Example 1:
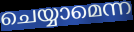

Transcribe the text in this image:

ചെയ്യാമെന്ന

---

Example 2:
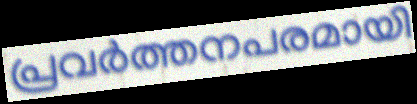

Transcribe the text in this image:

പ്രവർത്തനപരമായി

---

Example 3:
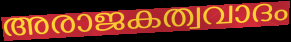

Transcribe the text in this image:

അരാജകത്വവാദം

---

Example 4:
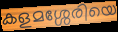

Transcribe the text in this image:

കളമശ്ശേരിയെ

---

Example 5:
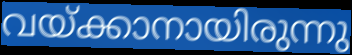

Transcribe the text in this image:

വയ്ക്കാനായിരുന്നു